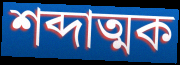
শব্দাত্মক